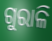
ଗୁରାଳି